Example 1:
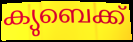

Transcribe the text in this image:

ക്യുബെക്ക്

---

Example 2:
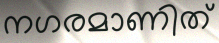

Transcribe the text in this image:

നഗരമാണിത്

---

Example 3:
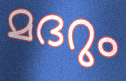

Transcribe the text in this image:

മദറും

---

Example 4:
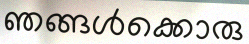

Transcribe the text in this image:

ഞങ്ങൾക്കൊരു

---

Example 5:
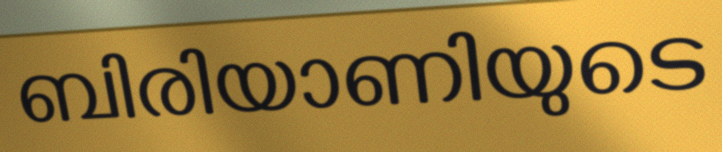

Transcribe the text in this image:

ബിരിയാണിയുടെ